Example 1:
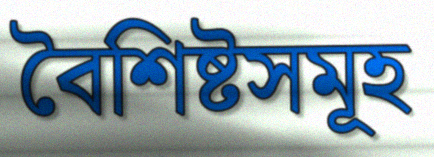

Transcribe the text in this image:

বৈশিষ্টসমূহ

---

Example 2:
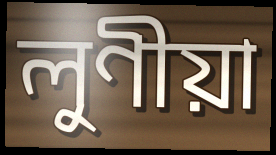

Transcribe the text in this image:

লুণীয়া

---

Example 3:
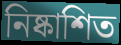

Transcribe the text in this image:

নিষ্কাশিত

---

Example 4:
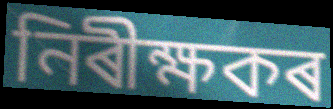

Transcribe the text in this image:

নিৰীক্ষকৰ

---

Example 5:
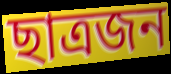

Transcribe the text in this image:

ছাত্ৰজন